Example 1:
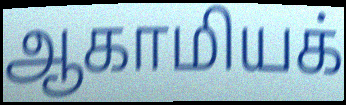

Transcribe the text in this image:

ஆகாமியக்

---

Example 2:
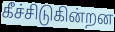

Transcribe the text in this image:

கீச்சிடுகின்றன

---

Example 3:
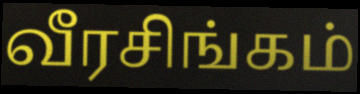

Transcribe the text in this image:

வீரசிங்கம்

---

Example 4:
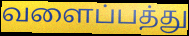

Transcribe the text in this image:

வளைப்பத்து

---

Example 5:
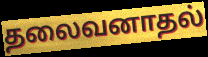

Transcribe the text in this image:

தலைவனாதல்